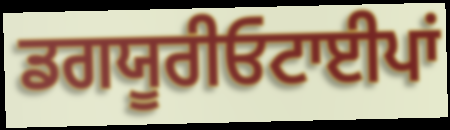
ਡਗਯੂਰੀਓਟਾਈਪਾਂ